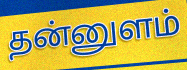
தன்னுளம்